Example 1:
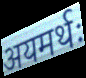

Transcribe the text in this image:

अयमर्थः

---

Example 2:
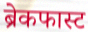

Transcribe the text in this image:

ब्रेकफास्ट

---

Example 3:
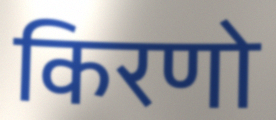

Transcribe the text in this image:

किरणो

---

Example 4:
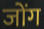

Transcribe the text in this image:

जोंग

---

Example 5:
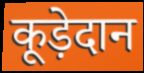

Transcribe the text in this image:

कूड़ेदान